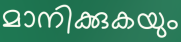
മാനിക്കുകയും